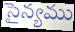
సైన్యము